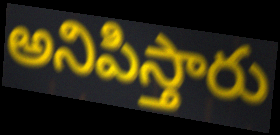
అనిపిస్తారు